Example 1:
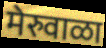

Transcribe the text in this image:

मेरुवाळा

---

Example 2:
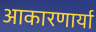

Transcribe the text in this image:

आकारणार्या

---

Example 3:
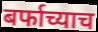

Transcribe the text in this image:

बर्फाच्याच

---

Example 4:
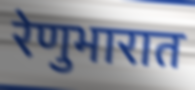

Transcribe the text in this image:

रेणुभारात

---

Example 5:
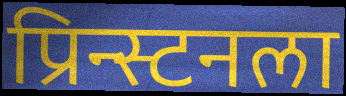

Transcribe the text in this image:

प्रिन्स्टनला